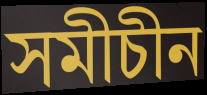
সমীচীন